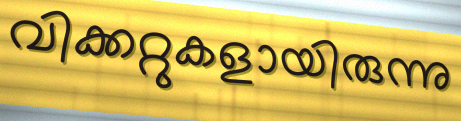
വിക്കറ്റുകളായിരുന്നു